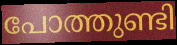
പോത്തുണ്ടി